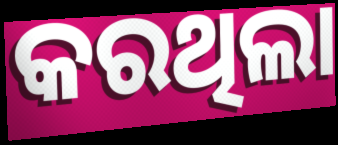
କରଥିଲା